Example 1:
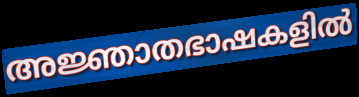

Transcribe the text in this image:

അജ്ഞാതഭാഷകളിൽ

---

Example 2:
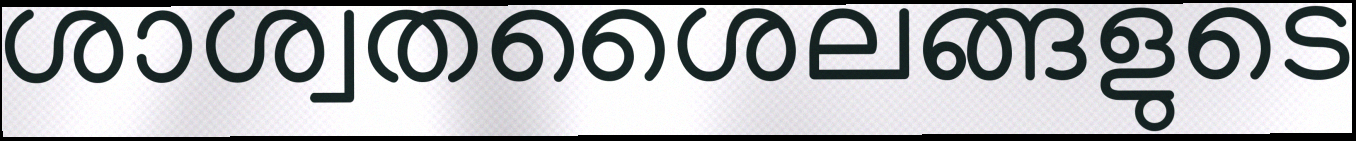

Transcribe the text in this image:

ശാശ്വതശൈലങ്ങളുടെ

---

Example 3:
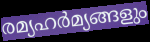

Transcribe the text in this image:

രമ്യഹർമ്യങ്ങളും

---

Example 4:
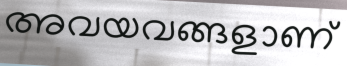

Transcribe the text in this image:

അവയവങ്ങളാണ്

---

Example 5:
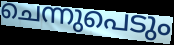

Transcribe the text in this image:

ചെന്നുപെടും